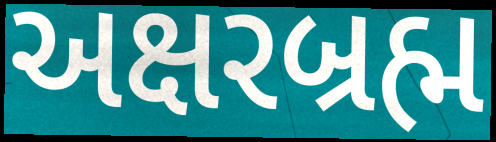
અક્ષરબ્રહ્મ